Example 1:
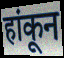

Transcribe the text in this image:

हांकून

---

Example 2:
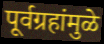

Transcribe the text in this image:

पूर्वग्रहांमुळे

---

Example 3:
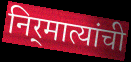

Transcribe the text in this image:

निर्मात्यांची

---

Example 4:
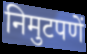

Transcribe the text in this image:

निमुटपणें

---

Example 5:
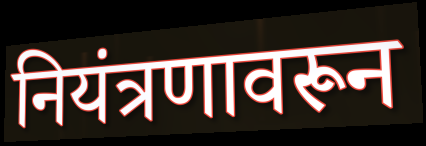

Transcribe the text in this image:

नियंत्रणावरून